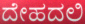
ದೇಹದಲಿ